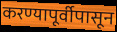
करण्यापूर्वीपासून